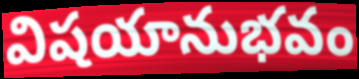
విషయానుభవం